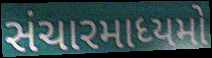
સંચારમાધ્યમો